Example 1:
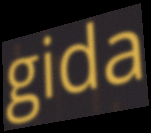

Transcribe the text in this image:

gida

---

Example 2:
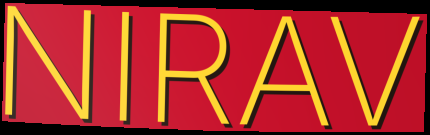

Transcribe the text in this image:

NIRAV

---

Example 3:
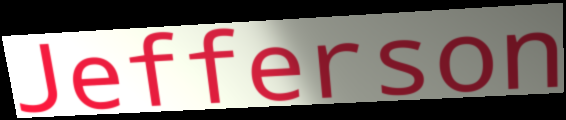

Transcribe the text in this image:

Jefferson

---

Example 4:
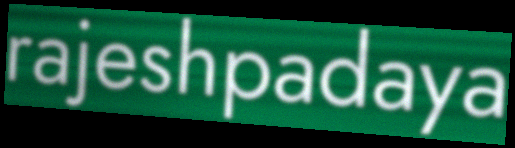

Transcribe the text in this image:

rajeshpadaya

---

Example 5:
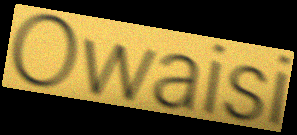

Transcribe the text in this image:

Owaisi